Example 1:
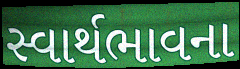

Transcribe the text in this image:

સ્વાર્થભાવના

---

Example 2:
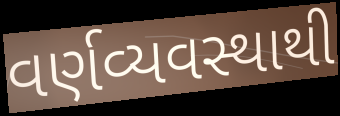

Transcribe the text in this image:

વર્ણવ્યવસ્થાથી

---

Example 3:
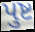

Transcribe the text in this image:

પુષ્ટ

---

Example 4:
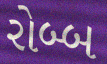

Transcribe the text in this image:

રોબ્બ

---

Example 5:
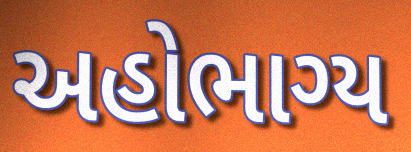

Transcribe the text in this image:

અહોભાગ્ય